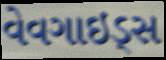
વેવગાઇડ્સ